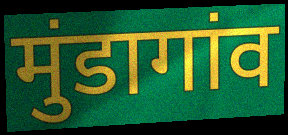
मुंडागांव